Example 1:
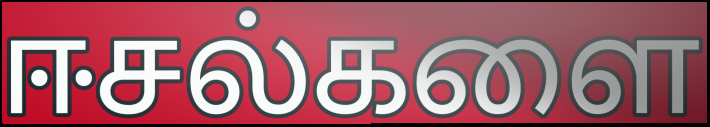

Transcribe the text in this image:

ஈசல்களை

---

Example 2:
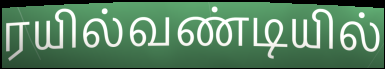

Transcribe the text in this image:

ரயில்வண்டியில்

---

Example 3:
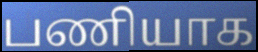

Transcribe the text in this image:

பணியாக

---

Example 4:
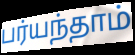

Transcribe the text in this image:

பர்யந்தாம்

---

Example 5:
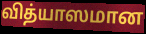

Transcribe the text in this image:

வித்யாஸமான